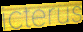
icterus